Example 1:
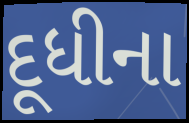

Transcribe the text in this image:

દૂધીના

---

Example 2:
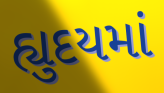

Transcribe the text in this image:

હ્યુદયમાં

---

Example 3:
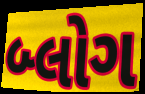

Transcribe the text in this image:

બ્લોગ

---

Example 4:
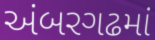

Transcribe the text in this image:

અંબરગઢમાં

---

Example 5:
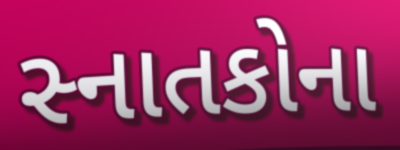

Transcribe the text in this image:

સ્નાતકોના